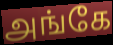
அங்கே